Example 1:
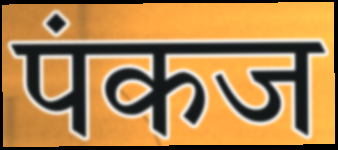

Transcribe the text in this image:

पंकज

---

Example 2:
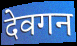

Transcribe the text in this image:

देवगन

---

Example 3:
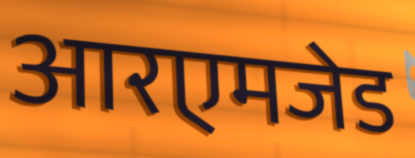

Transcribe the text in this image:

आरएमजेड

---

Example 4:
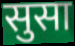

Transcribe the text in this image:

सुसा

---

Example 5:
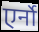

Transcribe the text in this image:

एर्नो